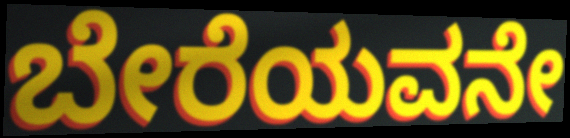
ಬೇರೆಯವನೇ